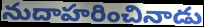
నుదాహరించినాడు